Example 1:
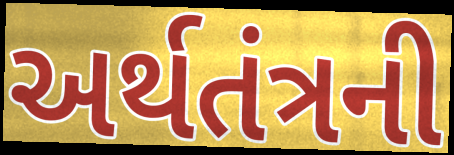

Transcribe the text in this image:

અર્થતંત્રની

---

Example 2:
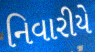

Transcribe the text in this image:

નિવારીયે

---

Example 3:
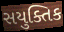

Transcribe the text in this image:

સયુક્તિક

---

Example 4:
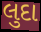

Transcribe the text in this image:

લુદા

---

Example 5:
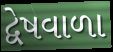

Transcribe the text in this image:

દ્વેષવાળા